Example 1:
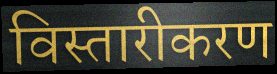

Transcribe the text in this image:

विस्तारीकरण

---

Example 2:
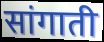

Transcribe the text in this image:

सांगाती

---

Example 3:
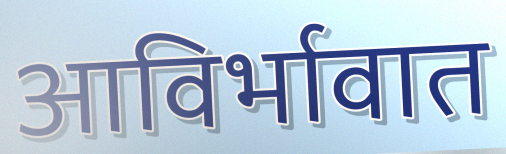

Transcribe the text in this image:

आविर्भावात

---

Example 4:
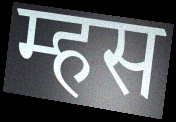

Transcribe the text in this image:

म्हस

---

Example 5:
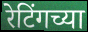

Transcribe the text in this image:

रेटिंगच्या